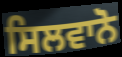
ਸਿਲਵਾਨੋ